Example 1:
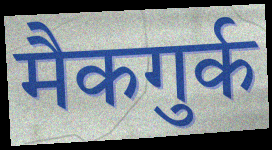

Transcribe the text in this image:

मैकगुर्क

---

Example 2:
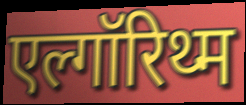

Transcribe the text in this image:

एल्गॉरिथ्म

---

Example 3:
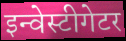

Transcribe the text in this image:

इन्वेस्टीगेटर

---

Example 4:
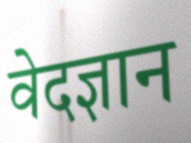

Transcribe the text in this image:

वेदज्ञान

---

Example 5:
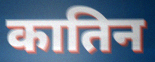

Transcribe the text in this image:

कातिन